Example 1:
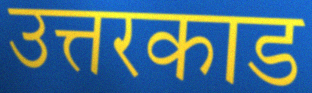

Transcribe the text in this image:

उत्तरकाड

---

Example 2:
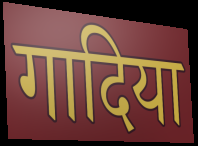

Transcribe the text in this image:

गादिया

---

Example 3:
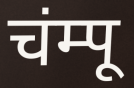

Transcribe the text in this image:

चंम्पू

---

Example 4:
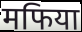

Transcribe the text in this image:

मफिया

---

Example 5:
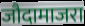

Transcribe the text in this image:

जौदामाजरा